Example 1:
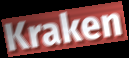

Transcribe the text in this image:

Kraken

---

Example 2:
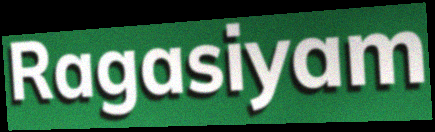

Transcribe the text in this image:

Ragasiyam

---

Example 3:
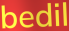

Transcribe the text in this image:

bedil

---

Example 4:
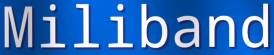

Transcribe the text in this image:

Miliband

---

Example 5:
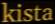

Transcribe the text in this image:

kista